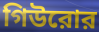
গিউরোর